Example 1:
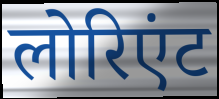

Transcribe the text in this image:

लोरिएंट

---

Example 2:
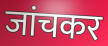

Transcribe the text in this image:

जांचकर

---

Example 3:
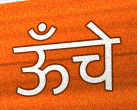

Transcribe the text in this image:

ऊँचे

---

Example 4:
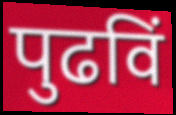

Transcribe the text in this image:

पुढविं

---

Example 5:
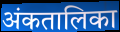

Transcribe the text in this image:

अंकतालिका